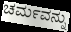
ಚರ್ಮವನ್ನು